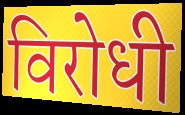
विरोधी